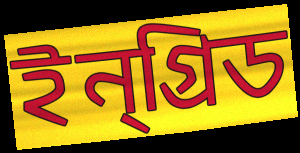
ইন্‌গ্রিড